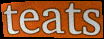
teats